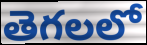
తెగలలో